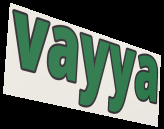
vayya